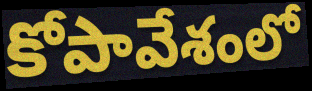
కోపావేశంలో